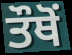
ਤੌਥੋਂ